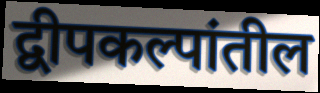
द्वीपकल्पांतील